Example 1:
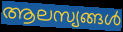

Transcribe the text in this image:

ആലസ്യങ്ങൾ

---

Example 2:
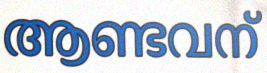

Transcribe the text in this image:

ആണ്ടവന്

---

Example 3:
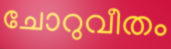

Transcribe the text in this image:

ചോറുവീതം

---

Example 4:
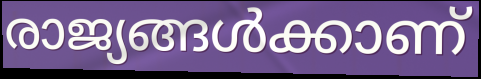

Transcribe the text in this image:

രാജ്യങ്ങൾക്കാണ്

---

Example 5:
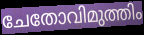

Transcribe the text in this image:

ചേതോവിമുത്തിം